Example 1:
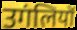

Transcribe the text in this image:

उगंलियों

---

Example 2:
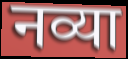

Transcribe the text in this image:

नव्या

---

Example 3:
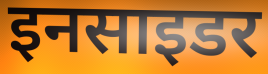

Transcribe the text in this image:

इनसाइडर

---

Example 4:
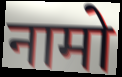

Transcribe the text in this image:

नामो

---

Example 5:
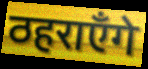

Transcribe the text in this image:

ठहराएँगे